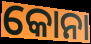
କୋନା